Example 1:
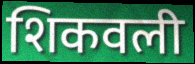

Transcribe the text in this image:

शिकवली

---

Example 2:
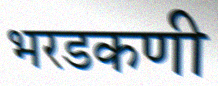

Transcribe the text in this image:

भरडकणी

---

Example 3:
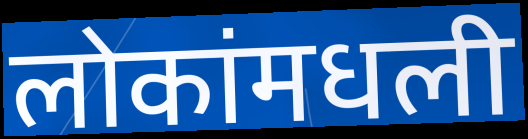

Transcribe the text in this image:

लोकांमधली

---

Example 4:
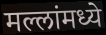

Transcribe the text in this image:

मल्लांमध्ये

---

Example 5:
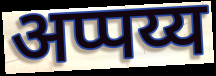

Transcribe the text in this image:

अप्पय्य